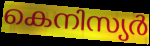
കെനിസ്യർ